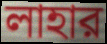
লাহার